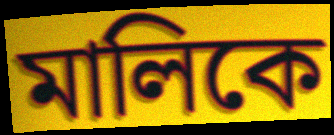
মালিকে